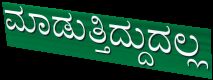
ಮಾಡುತ್ತಿದ್ದುದಲ್ಲ